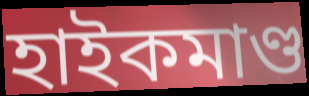
হাইকমাণ্ড